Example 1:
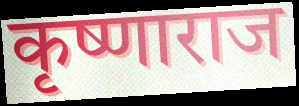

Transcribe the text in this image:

कृष्णाराज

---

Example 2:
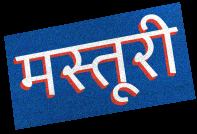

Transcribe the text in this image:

मस्तूरी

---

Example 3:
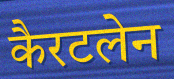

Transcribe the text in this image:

कैरटलेन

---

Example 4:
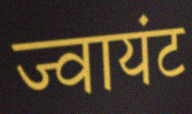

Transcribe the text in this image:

ज्वायंट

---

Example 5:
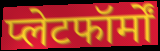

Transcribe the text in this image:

प्लेटफॉर्मों